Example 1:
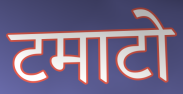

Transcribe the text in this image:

टमाटो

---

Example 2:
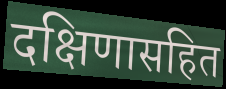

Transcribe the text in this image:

दक्षिणासहित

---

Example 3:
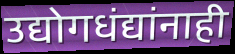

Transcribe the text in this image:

उद्योगधंद्यांनाही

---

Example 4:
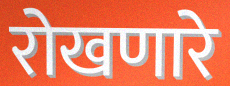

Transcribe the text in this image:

रोखणारे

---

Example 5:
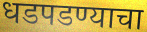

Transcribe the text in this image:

धडपडण्याचा